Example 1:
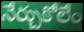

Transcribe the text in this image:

నేర్చుకోలేం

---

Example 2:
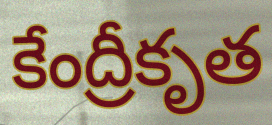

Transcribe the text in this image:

కేంద్రీకృత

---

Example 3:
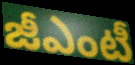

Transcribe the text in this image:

జీఎంటీ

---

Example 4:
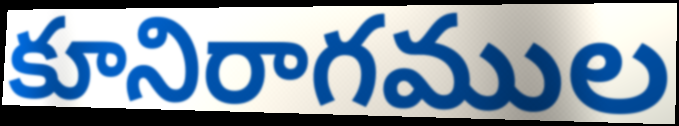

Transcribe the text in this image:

కూనిరాగముల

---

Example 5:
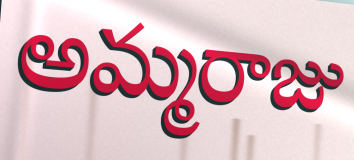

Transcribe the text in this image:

అమ్మరాజు